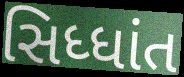
સિધ્ધાંત